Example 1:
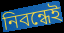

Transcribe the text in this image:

নিবন্ধেই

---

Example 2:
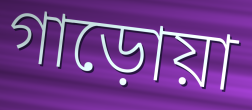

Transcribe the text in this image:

গাড়োয়া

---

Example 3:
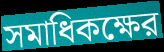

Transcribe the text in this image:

সমাধিকক্ষের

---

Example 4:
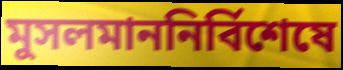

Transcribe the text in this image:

মুসলমাননির্বিশেষে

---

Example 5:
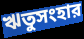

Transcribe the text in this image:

ঋতুসংহার